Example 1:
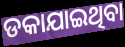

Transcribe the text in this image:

ଡକାଯାଇଥିବା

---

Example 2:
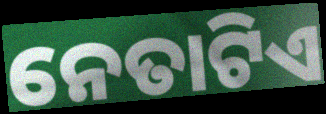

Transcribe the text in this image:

ନେତାଟିଏ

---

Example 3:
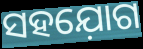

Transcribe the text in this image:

ସହଯ଼ୋଗ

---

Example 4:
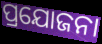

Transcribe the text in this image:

ପ୍ରଯୋଜନା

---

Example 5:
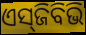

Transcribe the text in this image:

ଏସ୍‌ଜିବିଭି